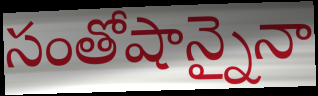
సంతోషాన్నైనా